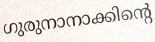
ഗുരുനാനാക്കിന്റെ